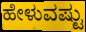
ಹೇಳುವಷ್ಟು